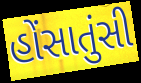
હોંસાતુંસી